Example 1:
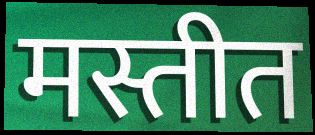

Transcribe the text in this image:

मस्तीत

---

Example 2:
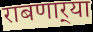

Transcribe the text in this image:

राबणार्या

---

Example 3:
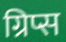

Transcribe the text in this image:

ग्रिप्स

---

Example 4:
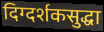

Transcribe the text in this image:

दिग्दर्शकसुद्धा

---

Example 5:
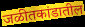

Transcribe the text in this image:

जळीतकांडातील